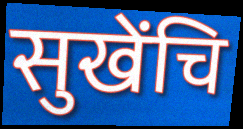
सुखेंचि